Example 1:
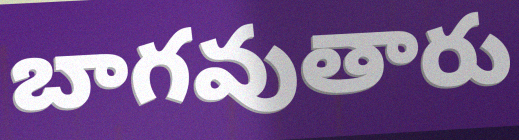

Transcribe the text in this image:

బాగవుతారు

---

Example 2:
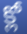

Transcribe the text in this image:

క్లో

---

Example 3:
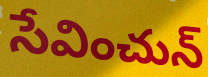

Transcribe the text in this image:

సేవించున్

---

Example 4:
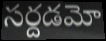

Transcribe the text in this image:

సర్దడమో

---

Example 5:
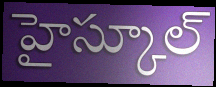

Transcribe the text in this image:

హైస్కూల్